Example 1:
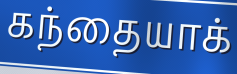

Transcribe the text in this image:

கந்தையாக்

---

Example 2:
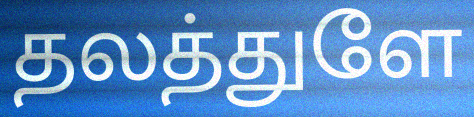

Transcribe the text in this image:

தலத்துளே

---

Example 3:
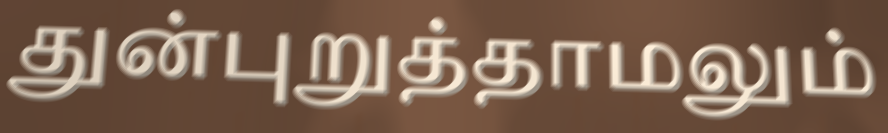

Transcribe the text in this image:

துன்புறுத்தாமலும்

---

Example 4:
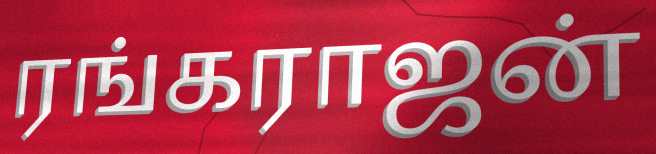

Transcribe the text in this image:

ரங்கராஜன்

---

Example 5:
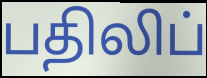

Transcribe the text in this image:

பதிலிப்